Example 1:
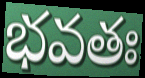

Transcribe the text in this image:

భవతః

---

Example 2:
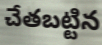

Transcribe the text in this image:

చేతబట్టిన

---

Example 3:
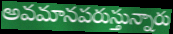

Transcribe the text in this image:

అవమానపరుస్తున్నారు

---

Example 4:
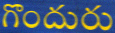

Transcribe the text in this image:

గొందురు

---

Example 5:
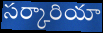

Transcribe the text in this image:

సర్కారియా